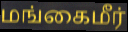
மங்கைமீர்